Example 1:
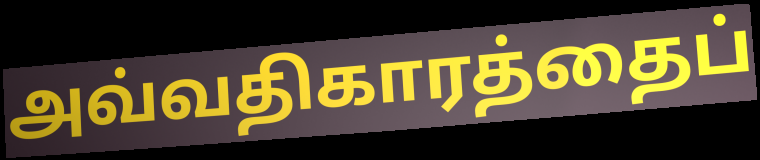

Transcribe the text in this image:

அவ்வதிகாரத்தைப்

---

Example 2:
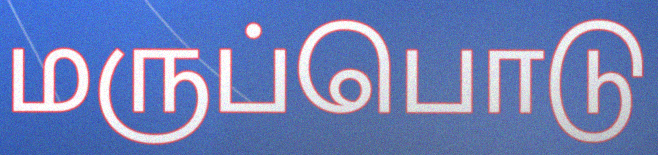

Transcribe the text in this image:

மருப்பொடு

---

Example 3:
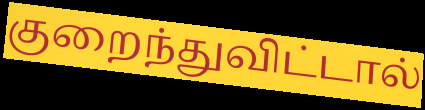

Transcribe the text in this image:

குறைந்துவிட்டால்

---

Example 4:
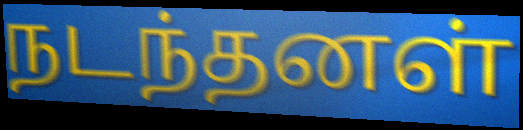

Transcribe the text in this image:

நடந்தனள்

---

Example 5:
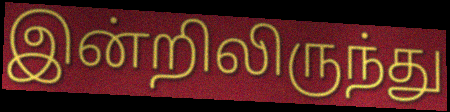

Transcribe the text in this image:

இன்றிலிருந்து